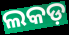
ଲକଡ଼